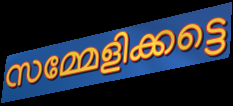
സമ്മേളിക്കട്ടെ